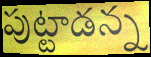
పుట్టాడన్న